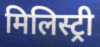
मिलिस्ट्री